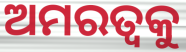
ଅମରତ୍ୱକୁ